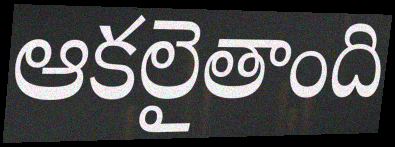
ఆకలైతాంది